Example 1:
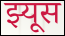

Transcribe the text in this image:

झ्यूस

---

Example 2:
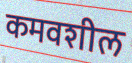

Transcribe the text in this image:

कमवशील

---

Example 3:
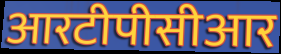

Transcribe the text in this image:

आरटीपीसीआर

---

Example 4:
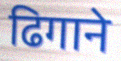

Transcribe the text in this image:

ढिगाने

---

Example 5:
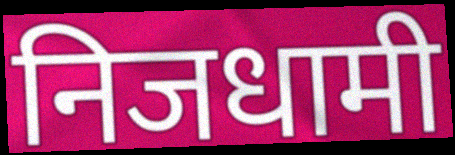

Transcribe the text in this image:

निजधामी